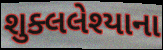
શુક્લલેશ્યાના